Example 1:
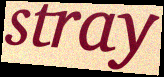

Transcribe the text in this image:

stray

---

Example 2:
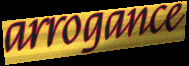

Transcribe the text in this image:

arrogance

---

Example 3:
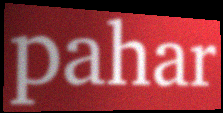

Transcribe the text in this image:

pahar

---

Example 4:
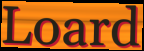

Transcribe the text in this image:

Loard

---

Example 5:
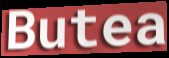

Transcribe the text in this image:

Butea